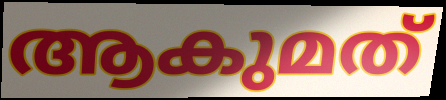
ആകുമത്